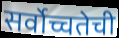
सर्वोच्चतेची